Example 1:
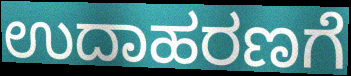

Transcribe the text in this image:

ಉದಾಹರಣಗೆ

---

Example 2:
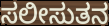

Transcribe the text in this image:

ಸಲೀಸುತನ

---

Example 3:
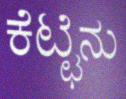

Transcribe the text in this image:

ಕೆಟ್ಟೆನು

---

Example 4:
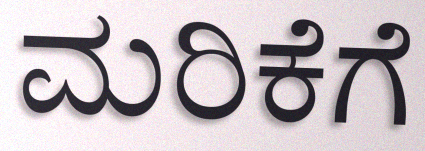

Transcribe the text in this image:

ಮರಿಕೆಗೆ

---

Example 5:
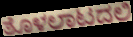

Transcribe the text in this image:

ತೊಳಲಾಟದಲಿ